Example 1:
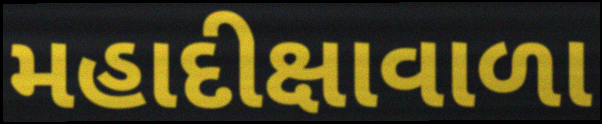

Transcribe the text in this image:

મહાદીક્ષાવાળા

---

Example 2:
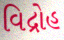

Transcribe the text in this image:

વિદ્રોહ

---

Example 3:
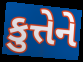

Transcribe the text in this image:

કુત્તેને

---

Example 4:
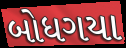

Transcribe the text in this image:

બોધગયા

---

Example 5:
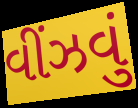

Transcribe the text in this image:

વીંઝવું